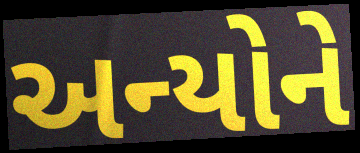
અન્યોને